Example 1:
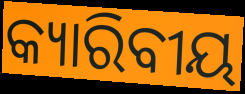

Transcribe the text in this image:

କ୍ୟାରିବୀୟ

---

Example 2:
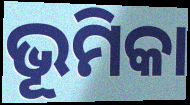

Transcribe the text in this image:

ଭୂମିକା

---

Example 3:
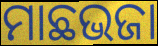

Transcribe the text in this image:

ମାଛଭଜା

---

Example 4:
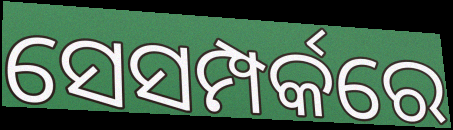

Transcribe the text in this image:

ସେସମ୍ପର୍କରେ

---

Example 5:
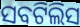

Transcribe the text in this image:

ସବଟିଲିସ